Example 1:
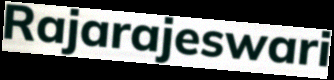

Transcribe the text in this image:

Rajarajeswari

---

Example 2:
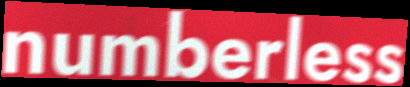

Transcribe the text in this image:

numberless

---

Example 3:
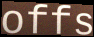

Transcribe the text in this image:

offs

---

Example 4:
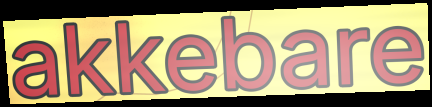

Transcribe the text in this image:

akkebare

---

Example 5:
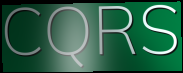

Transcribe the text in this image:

CQRS